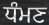
ਧੰਮਣ